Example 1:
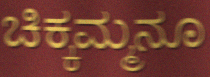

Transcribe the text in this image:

ಚಿಕ್ಕಮ್ಮನೂ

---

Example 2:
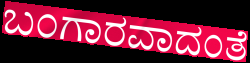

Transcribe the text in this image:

ಬಂಗಾರವಾದಂತೆ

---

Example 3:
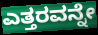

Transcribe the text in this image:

ಎತ್ತರವನ್ನೇ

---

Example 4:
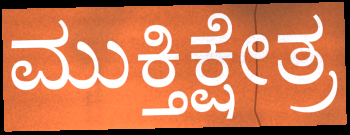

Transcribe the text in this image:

ಮುಕ್ತಿಕ್ಷೇತ್ರ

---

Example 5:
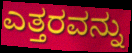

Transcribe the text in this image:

ಎತ್ತರವನ್ನು